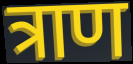
त्राण